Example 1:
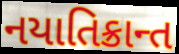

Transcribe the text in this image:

નયાતિક્રાન્ત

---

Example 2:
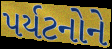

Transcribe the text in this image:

પર્યટનોને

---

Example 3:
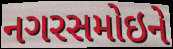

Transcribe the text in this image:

નગરસમોઇને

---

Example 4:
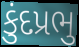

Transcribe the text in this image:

કુંદપ્રભુ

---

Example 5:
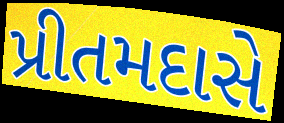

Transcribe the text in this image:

પ્રીતમદાસે